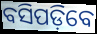
ବସିପଡ଼ିବେ